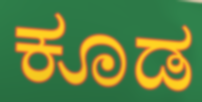
ಕೂಡ